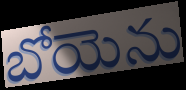
బోయెను